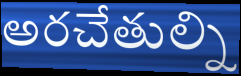
అరచేతుల్ని